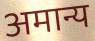
अमान्य